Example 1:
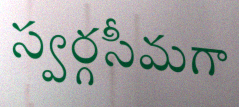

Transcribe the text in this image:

స్వర్గసీమగా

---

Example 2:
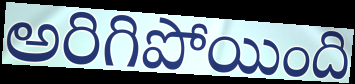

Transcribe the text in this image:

అరిగిపోయింది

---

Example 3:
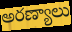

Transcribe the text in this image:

అరణ్యాలు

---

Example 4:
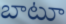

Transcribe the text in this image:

బాటూ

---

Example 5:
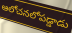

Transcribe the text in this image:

ఆలోచనలోపడ్డాడు